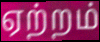
ஏற்றம்